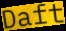
Daft